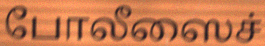
போலீஸைச்